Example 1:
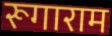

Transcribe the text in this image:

रूगाराम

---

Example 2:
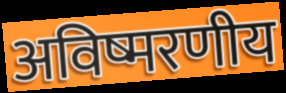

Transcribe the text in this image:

अविष्मरणीय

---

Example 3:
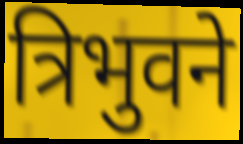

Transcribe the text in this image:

त्रिभुवने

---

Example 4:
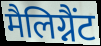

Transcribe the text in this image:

मैलिग्नैंट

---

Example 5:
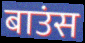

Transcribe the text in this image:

बाउंस